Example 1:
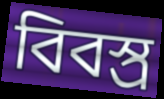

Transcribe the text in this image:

বিবস্ত্র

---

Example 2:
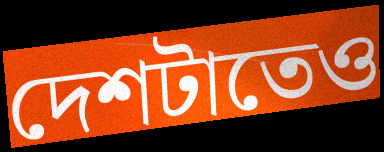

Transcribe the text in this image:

দেশটাতেও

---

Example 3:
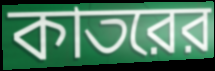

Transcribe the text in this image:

কাতরের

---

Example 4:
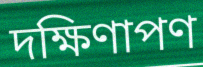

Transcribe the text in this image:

দক্ষিণাপণ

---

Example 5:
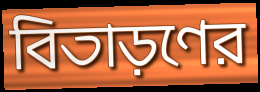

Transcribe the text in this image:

বিতাড়ণের